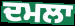
ਦਮਲਾ